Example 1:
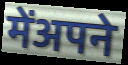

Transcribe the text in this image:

मेंअपने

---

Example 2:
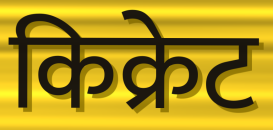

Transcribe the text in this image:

किक्रेट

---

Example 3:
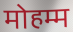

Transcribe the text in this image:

मोहम्म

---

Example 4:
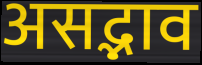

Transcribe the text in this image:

असद्भाव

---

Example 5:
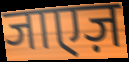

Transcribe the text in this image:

जाएज़